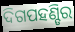
ଦିଗପହଣ୍ଡିର